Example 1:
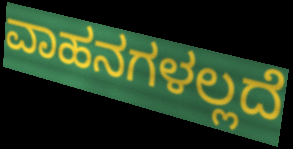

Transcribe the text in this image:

ವಾಹನಗಳಲ್ಲದೆ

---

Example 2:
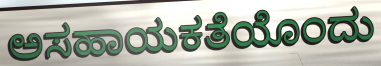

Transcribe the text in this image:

ಅಸಹಾಯಕತೆಯೊಂದು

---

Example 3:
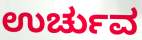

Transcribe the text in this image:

ಉರ್ಚುವ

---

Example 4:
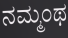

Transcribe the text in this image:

ನಮ್ಮಂಥ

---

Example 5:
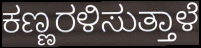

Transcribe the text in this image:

ಕಣ್ಣರಳಿಸುತ್ತಾಳೆ